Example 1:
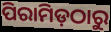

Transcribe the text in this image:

ପିରାମିଡ଼ଠାରୁ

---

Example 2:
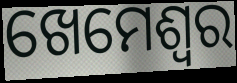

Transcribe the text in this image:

ଖେମେଶ୍ଵର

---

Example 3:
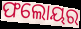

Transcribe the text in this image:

ଫଲୋୟର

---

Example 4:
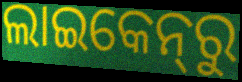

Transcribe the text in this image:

ଲାଇକେନ୍‌ରୁ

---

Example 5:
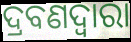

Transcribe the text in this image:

ଦ୍ରବଣଦ୍ବାରା